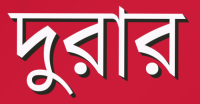
দুরার